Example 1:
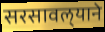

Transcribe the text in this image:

सरसावल्याने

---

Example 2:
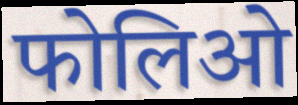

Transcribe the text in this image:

फोलिओ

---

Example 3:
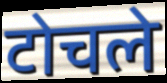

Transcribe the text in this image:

टोचले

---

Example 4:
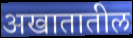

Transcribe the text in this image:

अखातातील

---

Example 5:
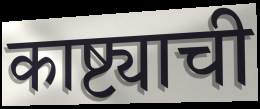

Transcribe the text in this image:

काष्ट्याची